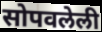
सोपवलेली